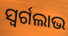
ସ୍ୱର୍ଗଲାଭ